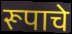
रूपाचे